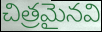
చిత్రమైనవి